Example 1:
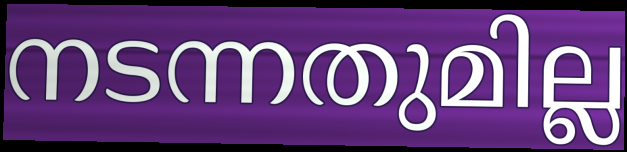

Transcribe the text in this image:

നടന്നതുമില്ല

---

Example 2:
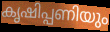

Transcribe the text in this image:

കൃഷിപ്പണിയും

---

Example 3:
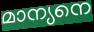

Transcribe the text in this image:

മാന്യനെ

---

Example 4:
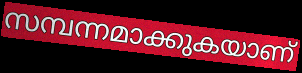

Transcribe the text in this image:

സമ്പന്നമാക്കുകയാണ്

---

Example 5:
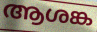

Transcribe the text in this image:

ആശങ്ക